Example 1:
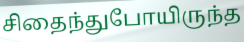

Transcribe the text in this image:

சிதைந்துபோயிருந்த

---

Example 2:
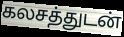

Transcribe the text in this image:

கலசத்துடன்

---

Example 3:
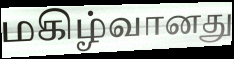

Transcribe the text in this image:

மகிழ்வானது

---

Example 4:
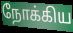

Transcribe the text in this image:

நோக்கிய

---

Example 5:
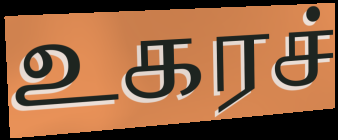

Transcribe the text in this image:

உகரச்